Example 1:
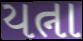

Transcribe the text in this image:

યત્ના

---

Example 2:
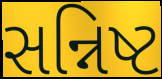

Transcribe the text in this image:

સન્નિષ્ટ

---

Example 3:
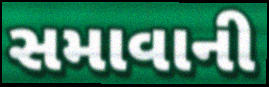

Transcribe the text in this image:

સમાવાની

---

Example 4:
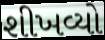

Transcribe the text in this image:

શીખવ્યો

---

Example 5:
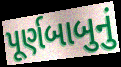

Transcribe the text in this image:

પૂર્ણબાબુનું